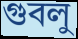
গুবলু